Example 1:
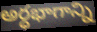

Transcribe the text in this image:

అర్ధభాగాన్ని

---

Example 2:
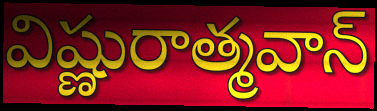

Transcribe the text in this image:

విష్ణురాత్మవాన్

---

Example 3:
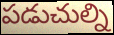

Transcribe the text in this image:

పడుచుల్ని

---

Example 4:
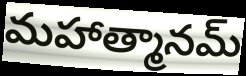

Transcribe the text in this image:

మహాత్మానమ్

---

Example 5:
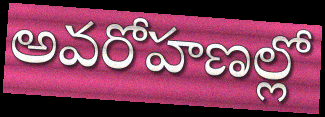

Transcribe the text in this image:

అవరోహణల్లో